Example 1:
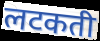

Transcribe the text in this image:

लटकती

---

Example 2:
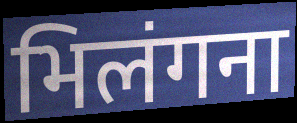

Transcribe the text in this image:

भिलंगना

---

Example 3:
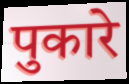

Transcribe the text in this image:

पुकारे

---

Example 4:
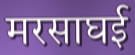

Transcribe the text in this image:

मरसाघई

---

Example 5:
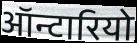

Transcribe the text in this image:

ऑन्टारियो